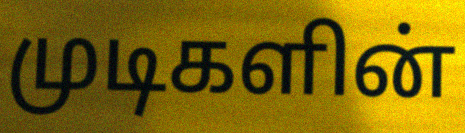
முடிகளின்